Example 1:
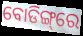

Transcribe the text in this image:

ବୋଡିଙ୍ଗ୍‌ରେ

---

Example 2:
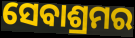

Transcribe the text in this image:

ସେବାଶ୍ରମର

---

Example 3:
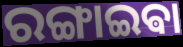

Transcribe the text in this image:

ରଙ୍ଗାଇଵା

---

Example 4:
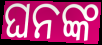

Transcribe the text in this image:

ଘନଙ୍କ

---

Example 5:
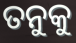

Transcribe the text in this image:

ତନୁକୁ